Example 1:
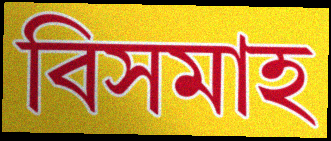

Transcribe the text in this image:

বিসমাহ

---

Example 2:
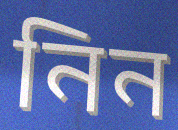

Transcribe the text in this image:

নিন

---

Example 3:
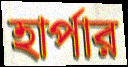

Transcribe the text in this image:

হার্পার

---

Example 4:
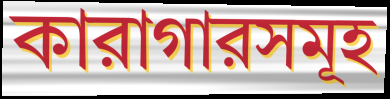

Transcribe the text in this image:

কারাগারসমূহ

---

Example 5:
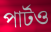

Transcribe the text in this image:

পার্টও